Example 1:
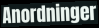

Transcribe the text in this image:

Anordninger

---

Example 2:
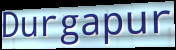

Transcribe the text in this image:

Durgapur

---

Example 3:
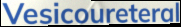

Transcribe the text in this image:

Vesicoureteral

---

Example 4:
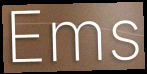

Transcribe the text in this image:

Ems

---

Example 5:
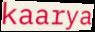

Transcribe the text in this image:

kaarya